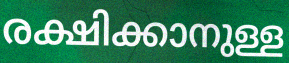
രക്ഷിക്കാനുള്ള